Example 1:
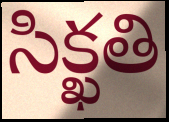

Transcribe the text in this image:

సిక్ఖతి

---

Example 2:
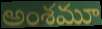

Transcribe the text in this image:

అంశమూ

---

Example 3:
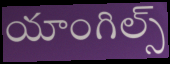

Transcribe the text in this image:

యాంగిల్స్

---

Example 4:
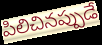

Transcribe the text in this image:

పిలిచినప్పుడే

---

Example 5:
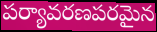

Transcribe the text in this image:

పర్యావరణపరమైన